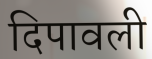
दिपावली